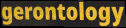
gerontology